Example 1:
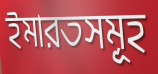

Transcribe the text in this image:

ইমারতসমূহ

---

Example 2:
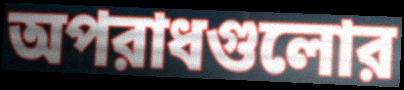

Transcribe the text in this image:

অপরাধগুলোর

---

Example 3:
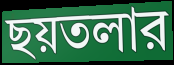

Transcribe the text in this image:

ছয়তলার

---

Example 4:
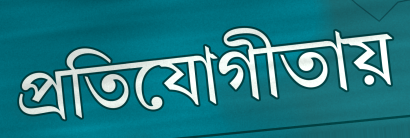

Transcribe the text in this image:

প্রতিযোগীতায়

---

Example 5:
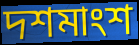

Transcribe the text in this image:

দশমাংশ